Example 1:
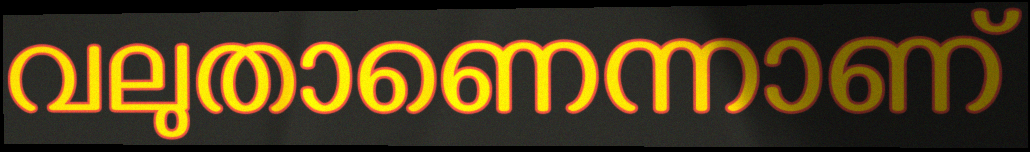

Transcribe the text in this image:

വലുതാണെന്നാണ്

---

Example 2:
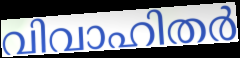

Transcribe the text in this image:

വിവാഹിതർ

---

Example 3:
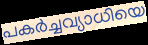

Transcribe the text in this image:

പകർച്ചവ്യാധിയെ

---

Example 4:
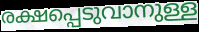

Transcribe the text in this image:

രക്ഷപ്പെടുവാനുള്ള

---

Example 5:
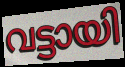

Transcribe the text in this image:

വട്ടായി